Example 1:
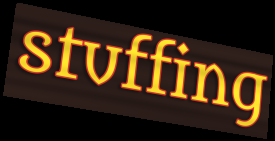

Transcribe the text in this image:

stuffing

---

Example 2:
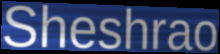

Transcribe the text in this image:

Sheshrao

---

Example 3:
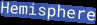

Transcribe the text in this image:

Hemisphere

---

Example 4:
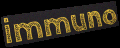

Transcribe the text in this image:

immuno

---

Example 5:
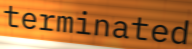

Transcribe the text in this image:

terminated